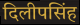
दिलीपसिंह